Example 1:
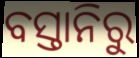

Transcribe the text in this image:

ବସ୍ତାନିରୁ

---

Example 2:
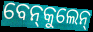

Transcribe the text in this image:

ବେନ୍‍କୁଲେନ୍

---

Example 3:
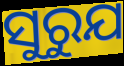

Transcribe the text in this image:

ସୁରୁଯ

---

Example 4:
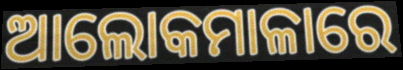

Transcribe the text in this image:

ଆଲୋକମାଳାରେ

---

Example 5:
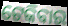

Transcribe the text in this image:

ଟେକିବାର